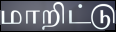
மாறிட்டு